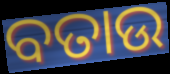
ବତାଉ